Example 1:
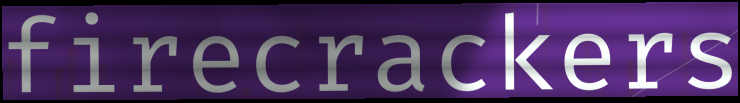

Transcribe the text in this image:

firecrackers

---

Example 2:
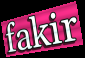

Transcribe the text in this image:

fakir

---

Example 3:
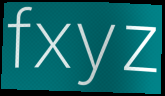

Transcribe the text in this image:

fxyz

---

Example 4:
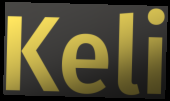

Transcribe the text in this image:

Keli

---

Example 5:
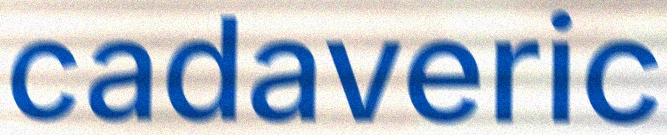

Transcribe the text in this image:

cadaveric